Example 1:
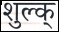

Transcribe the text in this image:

शुल्क्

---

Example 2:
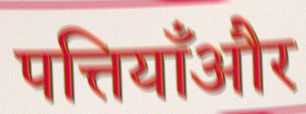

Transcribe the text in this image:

पत्तियाँऔर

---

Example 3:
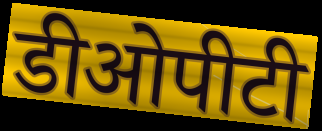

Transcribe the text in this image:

डीओपीटी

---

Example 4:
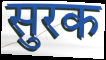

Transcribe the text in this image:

सुरक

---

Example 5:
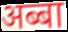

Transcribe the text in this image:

अब्बा